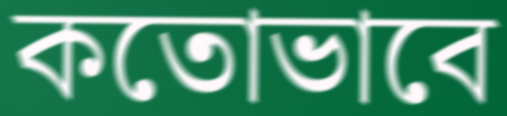
কতোভাবে